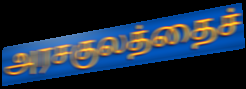
அரசகுலத்தைச்